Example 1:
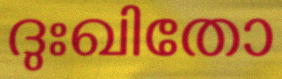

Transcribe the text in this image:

ദുഃഖിതോ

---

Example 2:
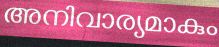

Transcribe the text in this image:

അനിവാര്യമാകും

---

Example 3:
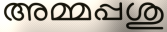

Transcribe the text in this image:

അമ്മപ്പശു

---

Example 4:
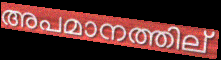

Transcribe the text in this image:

അപമാനത്തില്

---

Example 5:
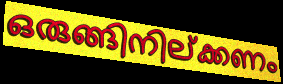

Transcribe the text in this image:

ഒരുങ്ങിനില്ക്കണം